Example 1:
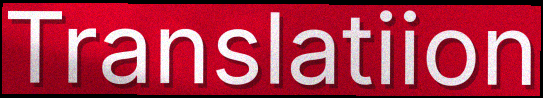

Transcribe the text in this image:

Translatiion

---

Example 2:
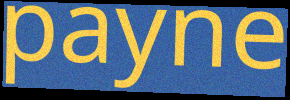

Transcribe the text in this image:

payne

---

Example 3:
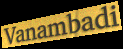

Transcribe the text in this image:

Vanambadi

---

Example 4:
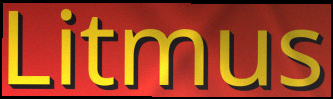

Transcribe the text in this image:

Litmus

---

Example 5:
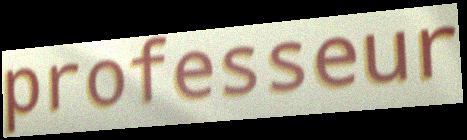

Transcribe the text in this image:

professeur